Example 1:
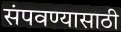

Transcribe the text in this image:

संपवण्यासाठी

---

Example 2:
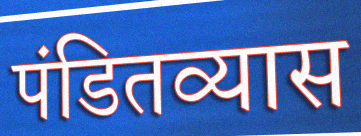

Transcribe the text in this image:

पंडितव्यास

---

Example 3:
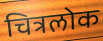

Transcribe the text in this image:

चित्रलोक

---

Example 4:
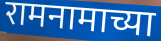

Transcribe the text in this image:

रामनामाच्या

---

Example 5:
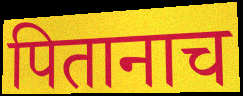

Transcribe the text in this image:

पितानाच